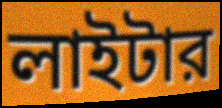
লাইটার